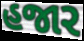
હજાર